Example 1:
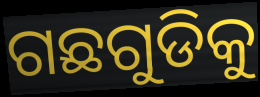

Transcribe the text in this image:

ଗଛଗୁଡିକୁ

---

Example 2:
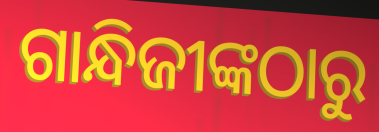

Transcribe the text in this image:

ଗାନ୍ଧିଜୀଙ୍କଠାରୁ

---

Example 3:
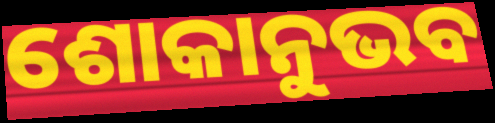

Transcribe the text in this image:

ଶୋକାନୁଭବ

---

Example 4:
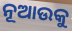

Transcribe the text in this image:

ନୂଆଉକୁ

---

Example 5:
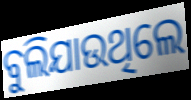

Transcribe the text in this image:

ବୁଲିଯାଉଥିଲେ